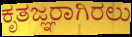
ಕೃತಜ್ಞರಾಗಿರಲು